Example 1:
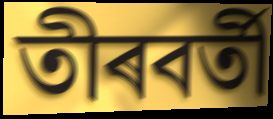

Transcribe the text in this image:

তীৰবৰ্তী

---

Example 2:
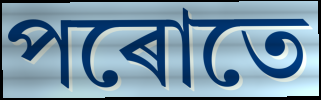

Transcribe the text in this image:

পৰোতে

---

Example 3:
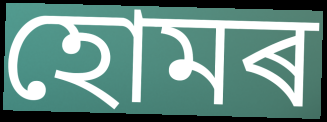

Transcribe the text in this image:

হোমৰ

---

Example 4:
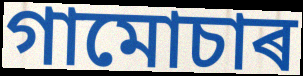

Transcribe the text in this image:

গামোচাৰ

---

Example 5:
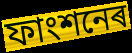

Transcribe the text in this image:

ফাংশনেৰ